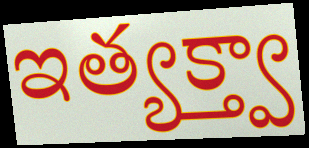
ఇత్యక్త్వా